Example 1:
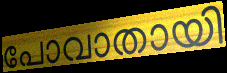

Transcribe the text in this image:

പോവാതായി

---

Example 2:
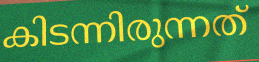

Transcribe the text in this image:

കിടന്നിരുന്നത്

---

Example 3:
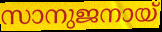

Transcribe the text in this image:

സാനുജനായ്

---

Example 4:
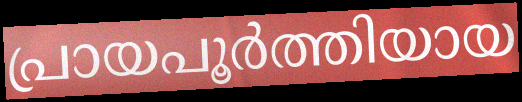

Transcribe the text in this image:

പ്രായപൂർത്തിയായ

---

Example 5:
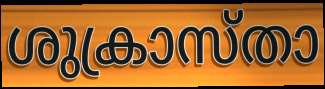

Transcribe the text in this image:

ശുക്രാസ്താ